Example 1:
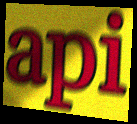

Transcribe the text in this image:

api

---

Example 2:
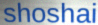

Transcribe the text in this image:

shoshai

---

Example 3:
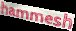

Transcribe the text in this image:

hammesh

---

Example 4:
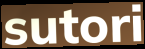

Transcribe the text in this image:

sutori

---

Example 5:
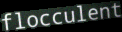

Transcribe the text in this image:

flocculent